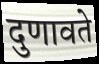
दुणावते